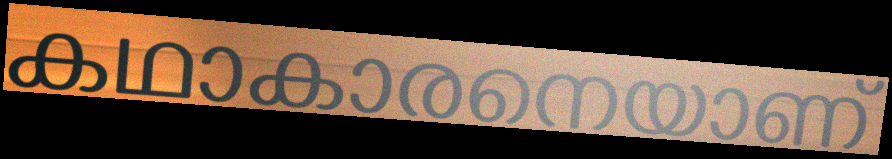
കഥാകാരനെയാണ്